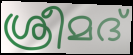
ശ്രീമദ്